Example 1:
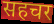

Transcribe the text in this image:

सहचर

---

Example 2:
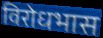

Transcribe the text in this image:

विरोधभास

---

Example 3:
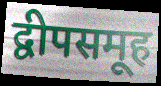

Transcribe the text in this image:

द्वीपसमूह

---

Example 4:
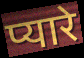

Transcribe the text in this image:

प्यारे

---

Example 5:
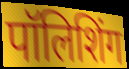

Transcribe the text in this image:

पॉलिशिंग